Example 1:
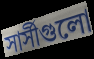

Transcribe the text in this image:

সার্সীগুলো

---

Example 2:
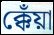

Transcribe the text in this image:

ক্কেঁয়া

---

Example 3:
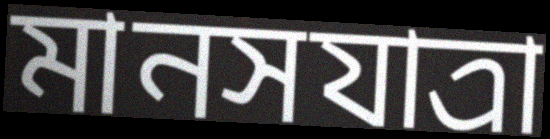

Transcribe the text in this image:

মানসযাত্রা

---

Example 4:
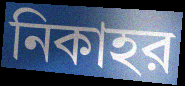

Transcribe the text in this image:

নিকাহর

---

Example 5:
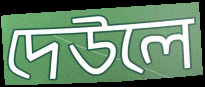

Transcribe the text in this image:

দেউলে